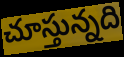
చూస్తున్నది